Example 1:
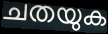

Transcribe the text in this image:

ചതയുക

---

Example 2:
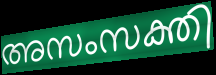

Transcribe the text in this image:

അസംസക്തി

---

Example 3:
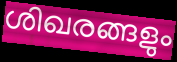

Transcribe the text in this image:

ശിഖരങ്ങളും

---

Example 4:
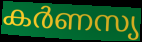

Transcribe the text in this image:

കർണസ്യ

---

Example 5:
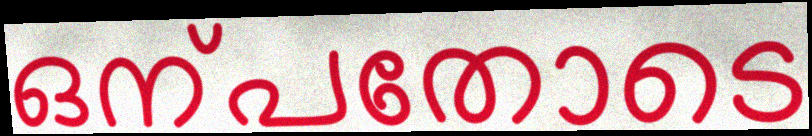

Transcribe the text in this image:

ഒന്പതോടെ